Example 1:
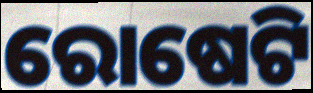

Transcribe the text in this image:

ରୋଷେଟି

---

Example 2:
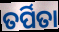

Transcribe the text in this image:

ତର୍ପିତା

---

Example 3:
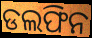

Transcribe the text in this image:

ଡଲଫିନ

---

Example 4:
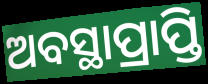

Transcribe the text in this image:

ଅବସ୍ଥାପ୍ରାପ୍ତି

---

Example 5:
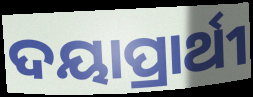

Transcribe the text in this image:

ଦୟାପ୍ରାର୍ଥୀ